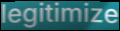
legitimize